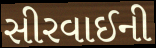
સીરવાઈની